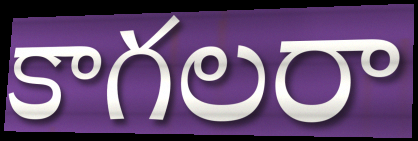
కాగలరా